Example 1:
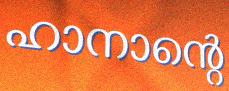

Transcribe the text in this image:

ഹാനാന്റെ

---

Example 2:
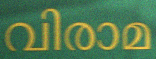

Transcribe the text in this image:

വിരാമ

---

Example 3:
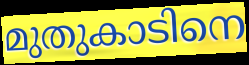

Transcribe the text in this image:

മുതുകാടിനെ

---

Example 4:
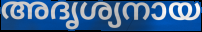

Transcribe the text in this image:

അദൃശ്യനായ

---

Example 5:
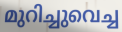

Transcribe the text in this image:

മുറിച്ചുവെച്ച